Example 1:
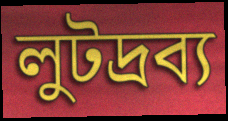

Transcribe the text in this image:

লুটদ্রব্য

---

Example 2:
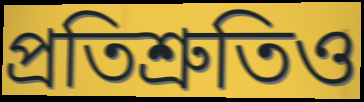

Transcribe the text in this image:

প্রতিশ্রুতিও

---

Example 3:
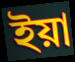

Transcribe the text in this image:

ইয়া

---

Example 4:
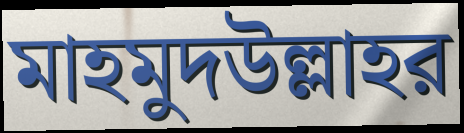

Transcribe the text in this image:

মাহমুদউল্লাহর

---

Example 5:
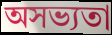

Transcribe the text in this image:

অসভ্যতা